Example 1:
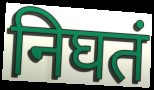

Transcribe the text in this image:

निघतं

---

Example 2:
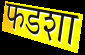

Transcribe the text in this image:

फडशा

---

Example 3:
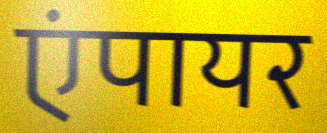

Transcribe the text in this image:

एंपायर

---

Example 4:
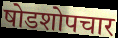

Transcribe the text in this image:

षोडशोपचार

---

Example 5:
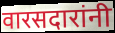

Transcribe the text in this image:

वारसदारांनी